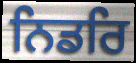
ਨਿਡਰਿ